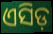
ଏସିଡ଼